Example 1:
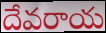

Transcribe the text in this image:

దేవరాయ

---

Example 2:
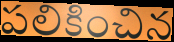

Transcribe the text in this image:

పలికించిన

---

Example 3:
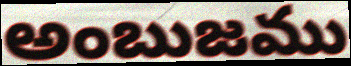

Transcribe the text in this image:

అంబుజము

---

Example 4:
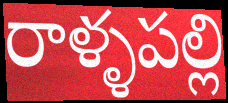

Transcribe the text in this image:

రాళ్ళపల్లి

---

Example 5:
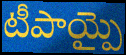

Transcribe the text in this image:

టీపాయ్పై